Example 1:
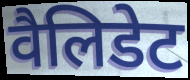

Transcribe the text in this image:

वैलिडेट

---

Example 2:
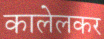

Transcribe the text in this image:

कालेलकर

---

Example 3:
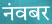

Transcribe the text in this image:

नंवबर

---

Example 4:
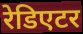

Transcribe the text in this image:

रेडिएटर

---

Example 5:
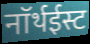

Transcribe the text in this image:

नॉर्थईस्‍ट